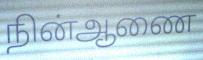
நின்ஆணை